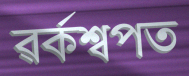
ৱৰ্কশ্বপত